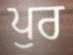
ਪੁਰ